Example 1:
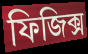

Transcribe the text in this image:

ফিজিক্স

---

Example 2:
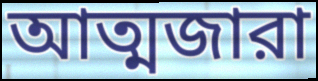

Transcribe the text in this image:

আত্মজারা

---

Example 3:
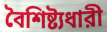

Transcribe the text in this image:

বৈশিষ্ট্যধারী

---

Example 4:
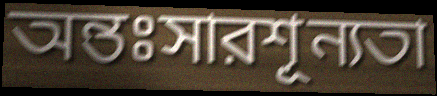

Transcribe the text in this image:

অন্তঃসারশূন্যতা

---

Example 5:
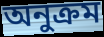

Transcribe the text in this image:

অনুক্রম